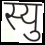
स्यु